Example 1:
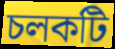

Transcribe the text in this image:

চলকটি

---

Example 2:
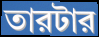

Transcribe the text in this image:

তারটার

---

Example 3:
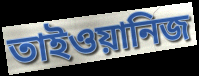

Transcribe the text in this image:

তাইওয়ানিজ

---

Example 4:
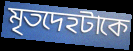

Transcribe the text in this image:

মৃতদেহটাকে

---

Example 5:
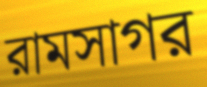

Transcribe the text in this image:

রামসাগর